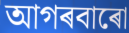
আগৰবাৰো